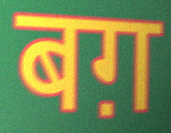
बग़